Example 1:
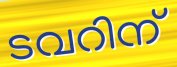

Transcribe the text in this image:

ടവറിന്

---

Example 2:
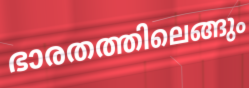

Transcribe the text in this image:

ഭാരതത്തിലെങ്ങും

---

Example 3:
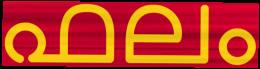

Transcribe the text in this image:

ഫലം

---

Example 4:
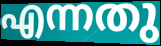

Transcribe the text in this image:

എന്നതു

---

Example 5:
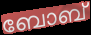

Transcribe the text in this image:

ബോബ്